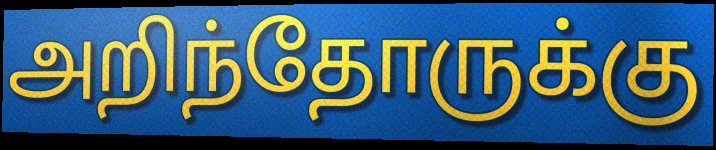
அறிந்தோருக்கு